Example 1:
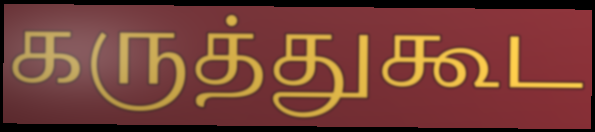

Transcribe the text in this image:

கருத்துகூட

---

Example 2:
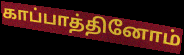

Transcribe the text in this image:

காப்பாத்தினோம்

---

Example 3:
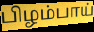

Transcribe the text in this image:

பிழம்பாய்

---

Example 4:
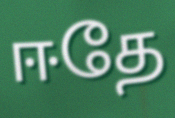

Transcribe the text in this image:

ஈதே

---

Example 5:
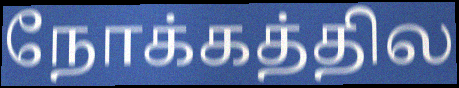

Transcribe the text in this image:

நோக்கத்தில